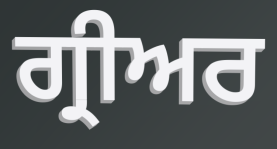
ਗ੍ਰੀਅਰ